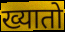
ख्यातो